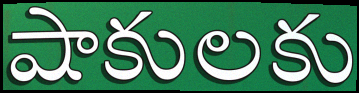
షాకులకు